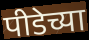
पीडेच्या